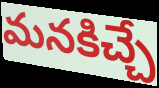
మనకిచ్చే